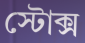
স্টোক্স